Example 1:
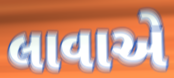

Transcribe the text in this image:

લાવાએ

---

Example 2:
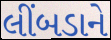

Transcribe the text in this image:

લીંબડાને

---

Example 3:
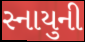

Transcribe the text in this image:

સ્નાયુની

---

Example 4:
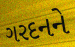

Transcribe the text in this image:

ગરદનને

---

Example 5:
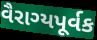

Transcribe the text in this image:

વૈરાગ્યપૂર્વક